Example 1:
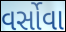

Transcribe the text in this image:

વર્સોવા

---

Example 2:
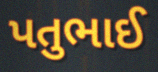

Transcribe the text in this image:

પતુભાઈ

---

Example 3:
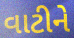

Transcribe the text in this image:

વાટીને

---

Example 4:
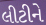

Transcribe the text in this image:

લીટીને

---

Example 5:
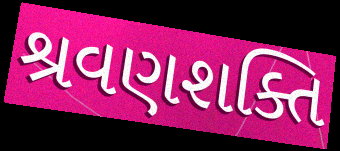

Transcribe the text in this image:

શ્રવણશક્તિ